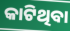
କାଟିଥିବା